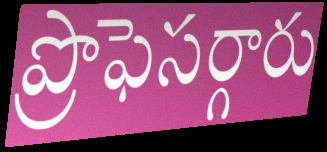
ప్రొఫెసర్గారు